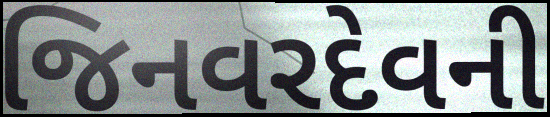
જિનવરદેવની